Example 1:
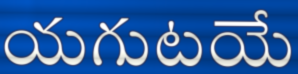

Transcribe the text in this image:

యగుటయే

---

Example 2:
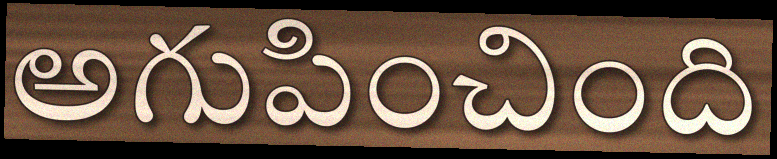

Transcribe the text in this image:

అగుపించింది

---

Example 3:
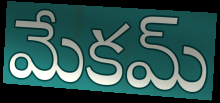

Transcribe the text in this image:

మేకమ్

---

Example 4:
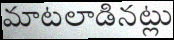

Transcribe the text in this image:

మాటలాడినట్లు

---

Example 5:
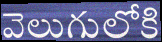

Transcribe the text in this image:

వెలుగులోకి